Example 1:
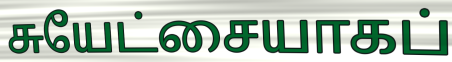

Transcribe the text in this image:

சுயேட்சையாகப்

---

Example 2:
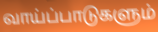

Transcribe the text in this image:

வாய்ப்பாடுகளும்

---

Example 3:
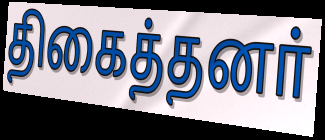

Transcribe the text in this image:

திகைத்தனர்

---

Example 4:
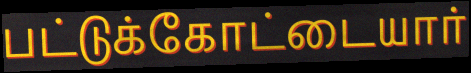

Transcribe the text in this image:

பட்டுக்கோட்டையார்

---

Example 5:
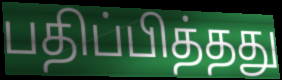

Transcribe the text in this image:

பதிப்பித்தது